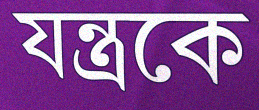
যন্ত্রকে